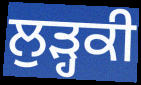
ਲੁੜ੍ਹਕੀ